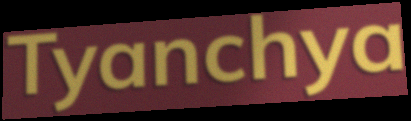
Tyanchya